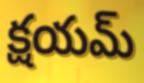
క్షయమ్